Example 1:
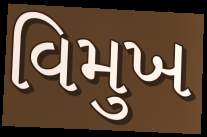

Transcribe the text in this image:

વિમુખ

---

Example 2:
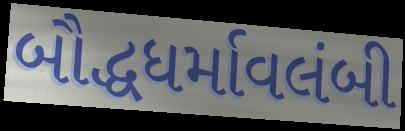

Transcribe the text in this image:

બૌદ્ધધર્માવલંબી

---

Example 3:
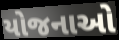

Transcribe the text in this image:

યોજનાઓ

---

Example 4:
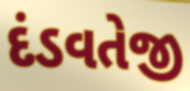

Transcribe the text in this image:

દંડવતેજી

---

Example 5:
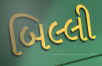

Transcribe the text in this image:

બિલ્લી